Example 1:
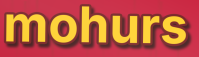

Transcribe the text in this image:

mohurs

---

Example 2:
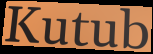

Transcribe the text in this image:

Kutub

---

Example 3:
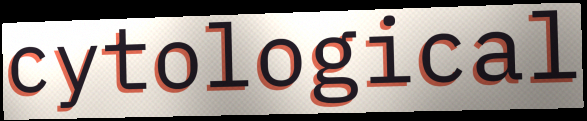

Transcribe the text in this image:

cytological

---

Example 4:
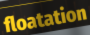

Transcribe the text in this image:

floatation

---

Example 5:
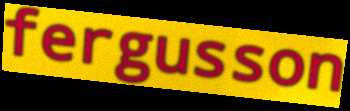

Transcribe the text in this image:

fergusson